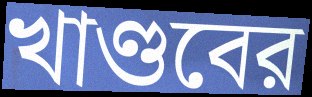
খাণ্ডবের